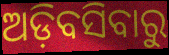
ଅଡ଼ିବସିବାରୁ